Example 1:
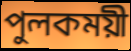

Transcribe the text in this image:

পুলকময়ী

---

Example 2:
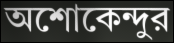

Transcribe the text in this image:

অশোকেন্দুর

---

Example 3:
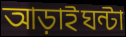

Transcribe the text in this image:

আড়াইঘন্টা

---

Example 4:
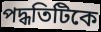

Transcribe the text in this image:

পদ্ধতিটিকে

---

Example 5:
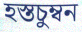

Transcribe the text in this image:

হস্তচুম্বন